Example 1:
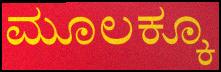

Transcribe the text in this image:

ಮೂಲಕ್ಕೂ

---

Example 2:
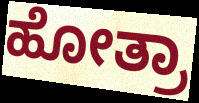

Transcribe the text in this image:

ಹೋತ್ರಾ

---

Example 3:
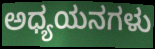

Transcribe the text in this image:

ಅಧ್ಯಯನಗಳು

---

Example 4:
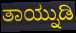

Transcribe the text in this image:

ತಾಯ್ನುಡಿ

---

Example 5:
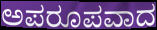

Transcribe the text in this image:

ಅಪರೂಪವಾದ